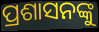
ପ୍ରଶାସନଙ୍କୁ